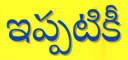
ఇప్పటికీ